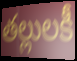
తల్లులకీ